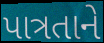
પાત્રતાને